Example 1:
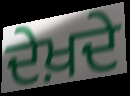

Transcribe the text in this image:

ਦੇਖ਼ਦੇ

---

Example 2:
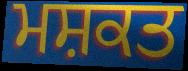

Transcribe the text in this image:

ਮਸ਼ਕਤ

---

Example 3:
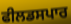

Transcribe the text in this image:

ਫੀਲਡਸਪਾਰ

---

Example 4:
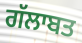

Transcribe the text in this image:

ਗੱਲਾਬਤ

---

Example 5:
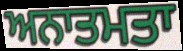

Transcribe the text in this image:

ਅਨਾਤਮਤਾ